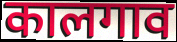
कालगाव